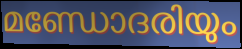
മണ്ഡോദരിയും